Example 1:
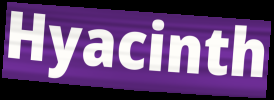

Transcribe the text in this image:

Hyacinth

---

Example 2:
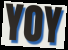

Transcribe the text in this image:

YOY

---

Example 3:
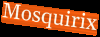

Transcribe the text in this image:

Mosquirix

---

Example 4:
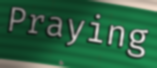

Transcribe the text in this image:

Praying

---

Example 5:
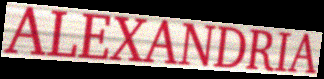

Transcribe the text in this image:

ALEXANDRIA